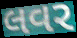
લવર